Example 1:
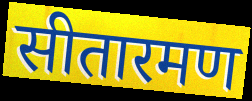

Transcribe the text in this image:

सीतारमण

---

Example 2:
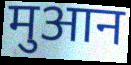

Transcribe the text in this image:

मुआन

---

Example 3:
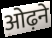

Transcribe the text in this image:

ओढ़ने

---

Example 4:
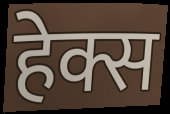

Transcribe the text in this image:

हेक्स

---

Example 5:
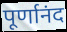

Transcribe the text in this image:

पूर्णानंद